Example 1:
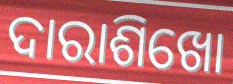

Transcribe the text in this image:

ଦାରାଶିଖୋ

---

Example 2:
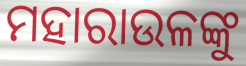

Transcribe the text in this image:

ମହାରାଉଳଙ୍କୁ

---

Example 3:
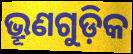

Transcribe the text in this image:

ଭ୍ରୂଣଗୁଡ଼ିକ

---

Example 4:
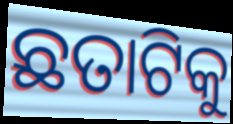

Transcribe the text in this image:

ଛତାଟିକୁ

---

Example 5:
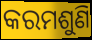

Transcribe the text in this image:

କରମଶୁଣି